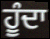
ਹੂੰਦਾ